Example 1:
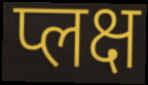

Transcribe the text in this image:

प्लक्ष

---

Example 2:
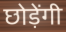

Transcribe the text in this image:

छोड़ेंगी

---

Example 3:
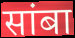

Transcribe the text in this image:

सांबा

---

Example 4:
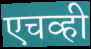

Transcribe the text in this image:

एचव्ही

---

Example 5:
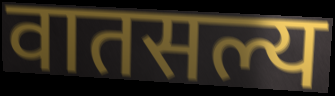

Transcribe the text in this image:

वातसल्य